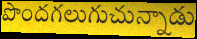
పొందగలుగుచున్నాడు